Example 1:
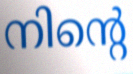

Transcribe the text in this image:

നിന്റെ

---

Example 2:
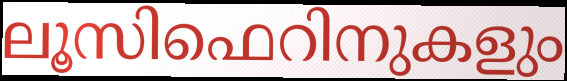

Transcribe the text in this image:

ലൂസിഫെറിനുകളും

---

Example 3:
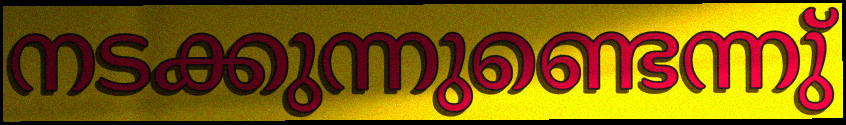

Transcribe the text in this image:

നടക്കുന്നുണ്ടെന്നു്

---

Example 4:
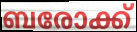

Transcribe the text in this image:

ബരോക്ക്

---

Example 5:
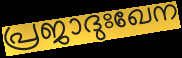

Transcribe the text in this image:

പ്രജാദുഃഖേന